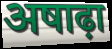
अषाढ़ा